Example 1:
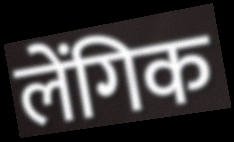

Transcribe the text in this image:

लेंगिक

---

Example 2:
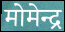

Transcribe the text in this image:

मोमेन्द्र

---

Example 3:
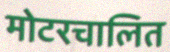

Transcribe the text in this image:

मोटरचालित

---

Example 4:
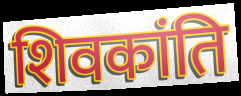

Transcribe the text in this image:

शिवकांति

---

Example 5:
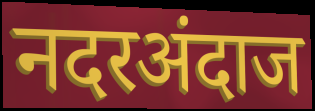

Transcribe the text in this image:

नदरअंदाज